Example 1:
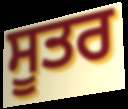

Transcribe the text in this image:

ਸੂਤਰ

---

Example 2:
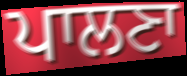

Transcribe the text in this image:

ਪਾਲਣਾ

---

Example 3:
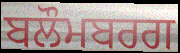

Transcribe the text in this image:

ਬਲੌਮਬਰਗ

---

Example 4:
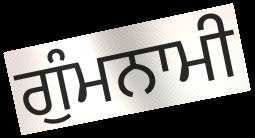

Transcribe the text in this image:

ਗੁੰਮਨਾਮੀ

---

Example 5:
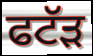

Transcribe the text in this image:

ਫਟੱੜ